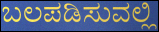
ಬಲಪಡಿಸುವಲ್ಲಿ